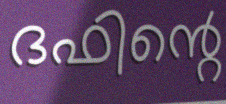
ദഫിന്റെ